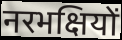
नरभक्षियों